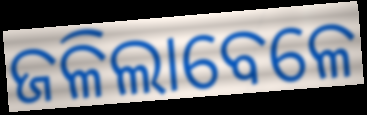
ଜଳିଲାବେଳେ